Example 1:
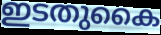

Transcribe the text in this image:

ഇടതുകൈ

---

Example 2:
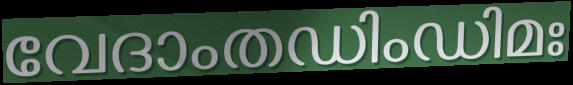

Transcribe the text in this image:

വേദാംതഡിംഡിമഃ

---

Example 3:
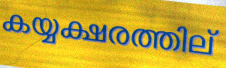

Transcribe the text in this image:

കയ്യക്ഷരത്തില്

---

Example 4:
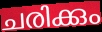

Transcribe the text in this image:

ചരിക്കും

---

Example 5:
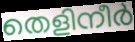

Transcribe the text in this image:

തെളിനീർ